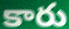
కారు